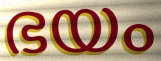
ഭയം